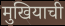
मुखियाची